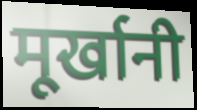
मूर्खानी